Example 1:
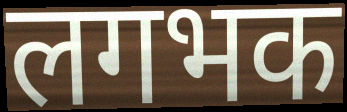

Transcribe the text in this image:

लगभक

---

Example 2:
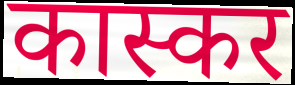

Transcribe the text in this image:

कास्कर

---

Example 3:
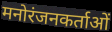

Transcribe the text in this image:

मनोरंजनकर्ताओं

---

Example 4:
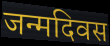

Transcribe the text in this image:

जन्मदिवस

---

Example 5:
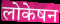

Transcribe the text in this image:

लोकेषन